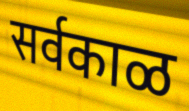
सर्वकाळ